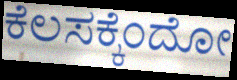
ಕೆಲಸಕ್ಕೆಂದೋ